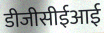
डीजीसीईआई